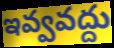
ఇవ్వవద్దు